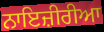
ਨਾਇਜ਼ੀਰੀਆ